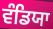
ਵੰਡਿਯਾ